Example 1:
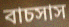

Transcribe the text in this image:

বাচসাস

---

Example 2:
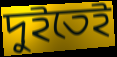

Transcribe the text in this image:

দুইতেই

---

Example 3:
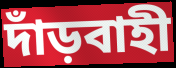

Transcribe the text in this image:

দাঁড়বাহী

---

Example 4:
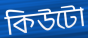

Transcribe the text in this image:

কিউটো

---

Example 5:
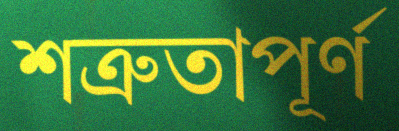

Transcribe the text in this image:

শত্রুতাপূর্ণ